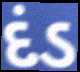
દંડ